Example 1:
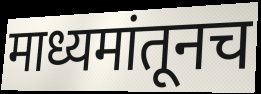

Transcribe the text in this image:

माध्यमांतूनच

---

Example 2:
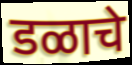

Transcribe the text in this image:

डळाचे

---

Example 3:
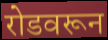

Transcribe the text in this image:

रोडवरून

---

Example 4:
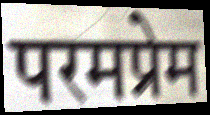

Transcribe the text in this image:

परमप्रेम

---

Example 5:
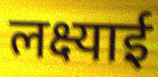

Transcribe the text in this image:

लक्ष्याई